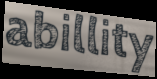
abillity